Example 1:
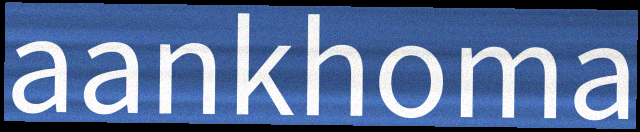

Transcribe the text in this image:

aankhoma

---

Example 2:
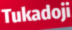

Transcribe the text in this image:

Tukadoji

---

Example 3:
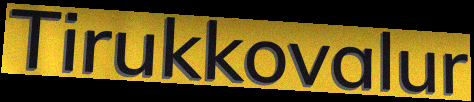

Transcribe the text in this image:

Tirukkovalur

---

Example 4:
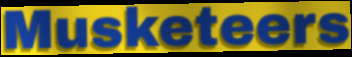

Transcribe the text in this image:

Musketeers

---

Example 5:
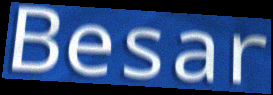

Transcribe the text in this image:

Besar